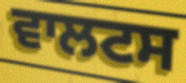
ਵਾਲਟਸ